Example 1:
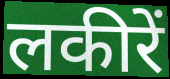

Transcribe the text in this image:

लकीरें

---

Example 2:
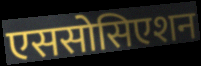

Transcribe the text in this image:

एससोसिएशन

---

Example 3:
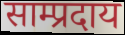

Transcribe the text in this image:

साम्प्रदाय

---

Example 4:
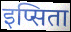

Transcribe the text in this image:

इप्सिता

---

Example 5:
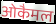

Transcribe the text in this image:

ओकैमल